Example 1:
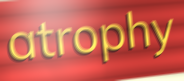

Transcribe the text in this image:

atrophy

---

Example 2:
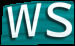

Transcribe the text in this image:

ws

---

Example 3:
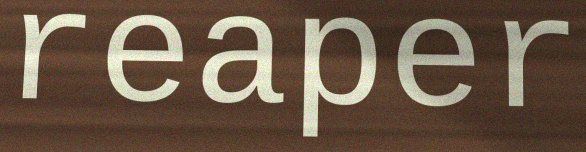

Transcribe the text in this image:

reaper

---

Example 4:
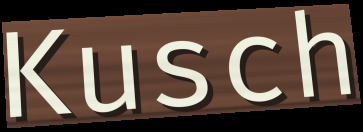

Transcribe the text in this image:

Kusch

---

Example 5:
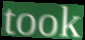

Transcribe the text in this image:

took